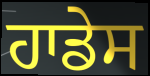
ਹਾਡੇਸ